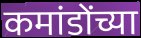
कमांडोंच्या